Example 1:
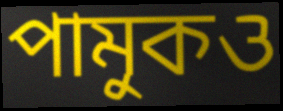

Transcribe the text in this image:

পামুকও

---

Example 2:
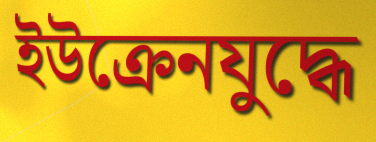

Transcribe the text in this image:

ইউক্রেনযুদ্ধে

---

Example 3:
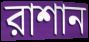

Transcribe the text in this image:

রাশান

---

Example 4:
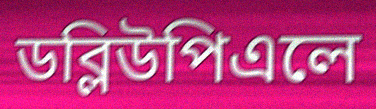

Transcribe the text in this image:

ডব্লিউপিএলে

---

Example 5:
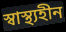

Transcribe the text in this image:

স্বাস্থ্যহীন